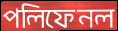
পলিফেনল